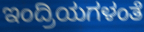
ಇಂದ್ರಿಯಗಳಂತೆ